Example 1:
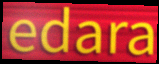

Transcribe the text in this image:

edara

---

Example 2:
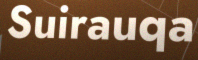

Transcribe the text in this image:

Suirauqa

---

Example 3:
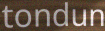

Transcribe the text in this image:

tondun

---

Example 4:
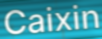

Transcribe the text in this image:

Caixin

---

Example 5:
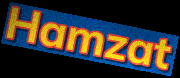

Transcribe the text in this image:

Hamzat